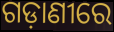
ଗଡ଼ାଣୀରେ